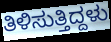
ತಿಳಿಸುತ್ತಿದ್ದಳು